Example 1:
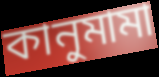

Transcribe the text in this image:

কানুমামা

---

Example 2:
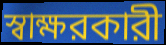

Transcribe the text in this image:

স্বাক্ষরকারী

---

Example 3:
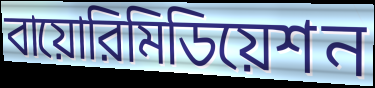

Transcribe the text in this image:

বায়োরিমিডিয়েশন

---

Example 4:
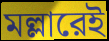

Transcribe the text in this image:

মল্লারেই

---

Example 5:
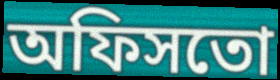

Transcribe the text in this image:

অফিসতো